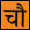
चौ